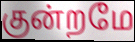
குன்றமே